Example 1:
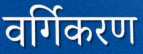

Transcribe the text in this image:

वर्गिकरण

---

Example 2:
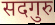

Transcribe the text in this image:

सदगुरु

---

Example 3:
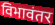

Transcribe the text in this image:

विभावंतर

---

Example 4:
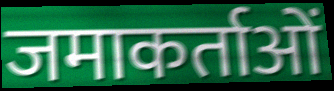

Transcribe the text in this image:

जमाकर्ताओं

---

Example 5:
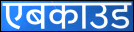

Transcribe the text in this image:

एबकाउड